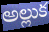
అల్లుక